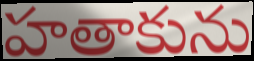
హతాకును